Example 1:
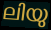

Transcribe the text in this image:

ലിയു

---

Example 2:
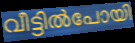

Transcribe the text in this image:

വീട്ടിൽപോയി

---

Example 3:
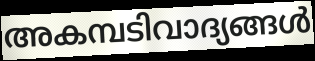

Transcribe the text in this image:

അകമ്പടിവാദ്യങ്ങൾ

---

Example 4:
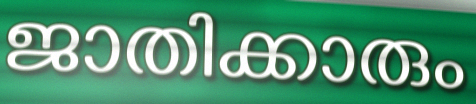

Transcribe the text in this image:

ജാതിക്കാരും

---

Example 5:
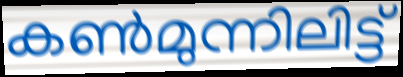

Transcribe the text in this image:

കൺമുന്നിലിട്ട്